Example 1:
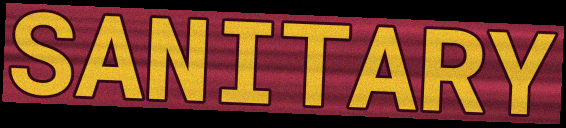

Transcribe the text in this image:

SANITARY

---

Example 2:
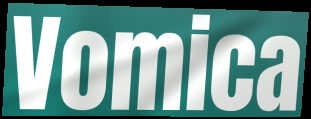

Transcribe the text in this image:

Vomica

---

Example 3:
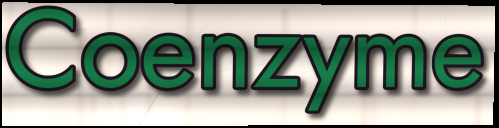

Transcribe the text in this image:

Coenzyme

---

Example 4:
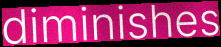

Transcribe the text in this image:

diminishes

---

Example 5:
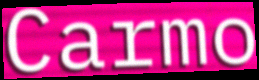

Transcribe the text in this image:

Carmo